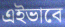
এইভাবে